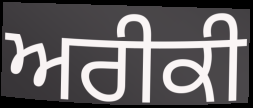
ਅਰੀਕੀ